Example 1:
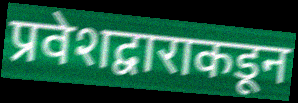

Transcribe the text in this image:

प्रवेशद्वाराकडून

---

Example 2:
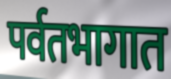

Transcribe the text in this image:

पर्वतभागात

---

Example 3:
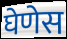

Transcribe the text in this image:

घेणेस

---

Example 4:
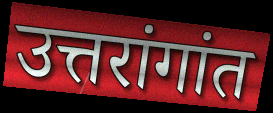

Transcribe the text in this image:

उत्तरांगांत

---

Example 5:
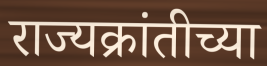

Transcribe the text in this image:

राज्यक्रांतीच्या